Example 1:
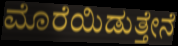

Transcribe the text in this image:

ಮೊರೆಯಿಡುತ್ತೇನೆ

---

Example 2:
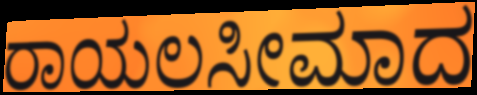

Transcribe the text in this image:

ರಾಯಲಸೀಮಾದ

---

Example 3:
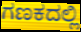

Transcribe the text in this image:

ಗಣಕದಲ್ಲಿ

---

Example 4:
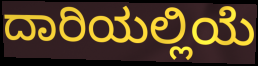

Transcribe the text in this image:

ದಾರಿಯಲ್ಲಿಯೆ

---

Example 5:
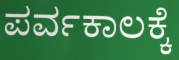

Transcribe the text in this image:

ಪರ್ವಕಾಲಕ್ಕೆ